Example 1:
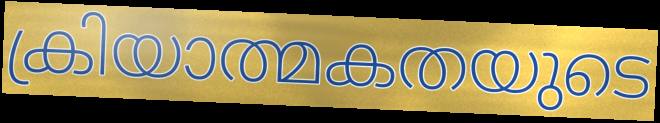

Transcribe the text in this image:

ക്രിയാത്മകതയുടെ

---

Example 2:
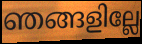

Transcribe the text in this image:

ഞങ്ങളില്ലേ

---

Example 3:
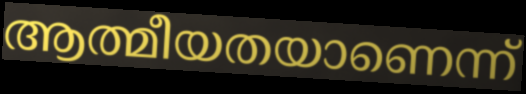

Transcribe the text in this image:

ആത്മീയതയാണെന്ന്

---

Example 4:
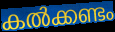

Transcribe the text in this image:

കൽക്കണ്ടം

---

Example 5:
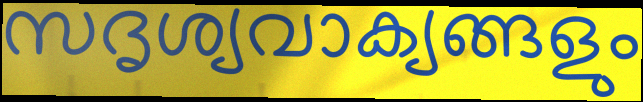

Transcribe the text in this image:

സദൃശ്യവാക്യങ്ങളും